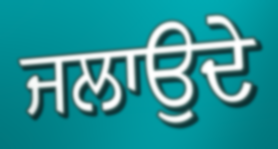
ਜਲਾਉਦੇ